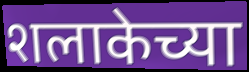
शलाकेच्या